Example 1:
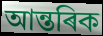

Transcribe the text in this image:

আন্তৰিক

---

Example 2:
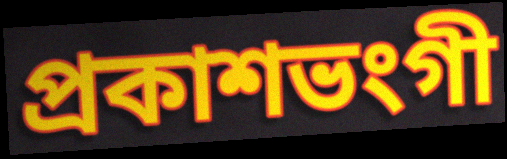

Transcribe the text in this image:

প্ৰকাশভংগী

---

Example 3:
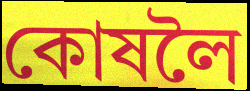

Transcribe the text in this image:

কোষলৈ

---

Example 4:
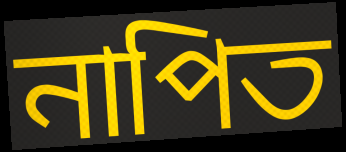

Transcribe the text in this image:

নাপিত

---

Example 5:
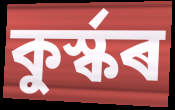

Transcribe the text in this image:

কুৰ্স্কৰ